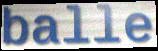
balle